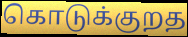
கொடுக்குறத